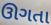
ઊગતા